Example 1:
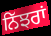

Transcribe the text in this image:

ਨਿੱਝਰਾਂ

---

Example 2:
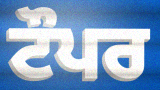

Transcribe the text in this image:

ਟੌਪਰ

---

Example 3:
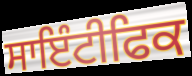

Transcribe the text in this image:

ਸਾਇੰਟੀਫਿਕ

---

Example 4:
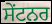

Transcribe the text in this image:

ਸੇਂਟਨਰ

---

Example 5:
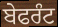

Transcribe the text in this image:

ਬੇਫਰੰਟ